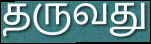
தருவது